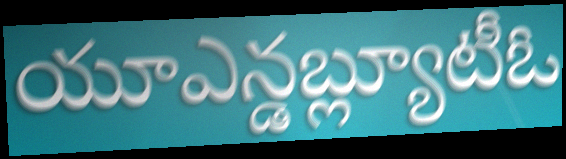
యూఎన్డబ్ల్యూటీఓ